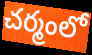
చర్మంలో